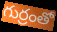
గుర్రంతో